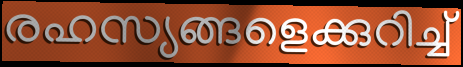
രഹസ്യങ്ങളെക്കുറിച്ച്